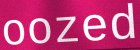
oozed